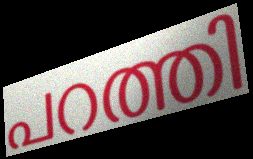
പറത്തി